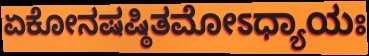
ಏಕೋನಷಷ್ಠಿತಮೋಽಧ್ಯಾಯಃ